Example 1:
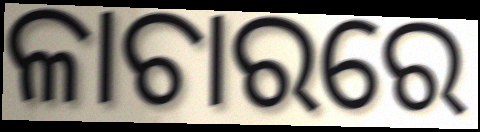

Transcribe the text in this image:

ଳାଚାରରେ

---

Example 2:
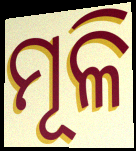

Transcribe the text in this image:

ମୂଳି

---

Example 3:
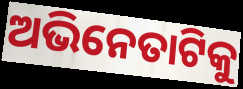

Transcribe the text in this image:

ଅଭିନେତାଟିକୁ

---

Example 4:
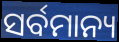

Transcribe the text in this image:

ସର୍ବମାନ୍ୟ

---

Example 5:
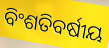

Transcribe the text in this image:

ବିଂଶତିବର୍ଷୀୟ